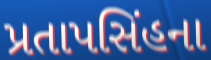
પ્રતાપસિંહના